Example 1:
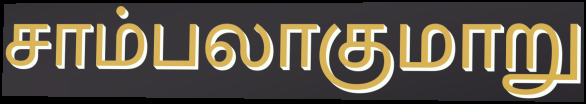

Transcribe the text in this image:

சாம்பலாகுமாறு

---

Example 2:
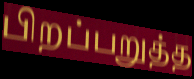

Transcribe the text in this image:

பிறப்பறுத்த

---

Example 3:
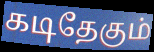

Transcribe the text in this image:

கடிதேகும்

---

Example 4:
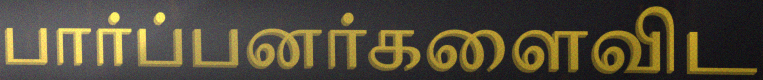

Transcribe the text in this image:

பார்ப்பனர்களைவிட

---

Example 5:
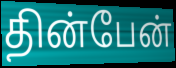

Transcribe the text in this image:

தின்பேன்